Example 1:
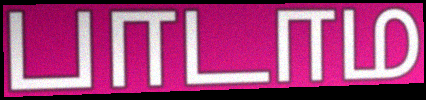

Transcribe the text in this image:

பாடாம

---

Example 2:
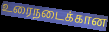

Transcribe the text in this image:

உரைநடைக்கான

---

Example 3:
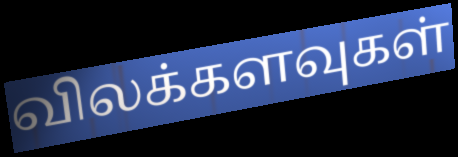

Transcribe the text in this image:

விலக்களவுகள்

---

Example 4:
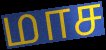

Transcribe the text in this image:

மாச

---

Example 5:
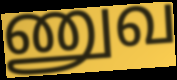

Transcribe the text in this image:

ணுவ